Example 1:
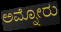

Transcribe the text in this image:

ಅಮ್ನೋರು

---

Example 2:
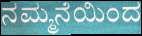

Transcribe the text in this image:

ನಮ್ಮನೆಯಿಂದ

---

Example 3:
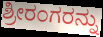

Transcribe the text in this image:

ಶ್ರೀರಂಗರನ್ನು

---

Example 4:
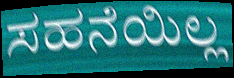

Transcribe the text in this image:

ಸಹನೆಯಿಲ್ಲ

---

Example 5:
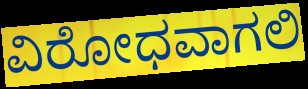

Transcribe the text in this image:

ವಿರೋಧವಾಗಲಿ